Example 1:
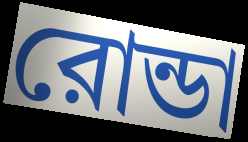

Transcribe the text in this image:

রোন্ডা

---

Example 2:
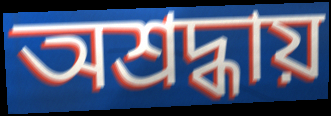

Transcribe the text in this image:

অশ্রদ্ধায়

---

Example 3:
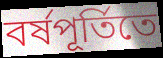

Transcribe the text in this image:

বর্ষপূর্তিতে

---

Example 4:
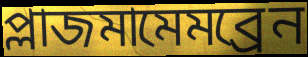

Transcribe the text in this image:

প্লাজমামেমব্রেন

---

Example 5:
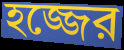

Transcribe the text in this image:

হজ্জের